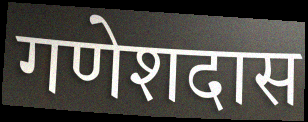
गणेशदास